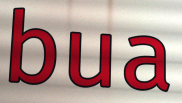
bua